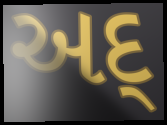
અદ્